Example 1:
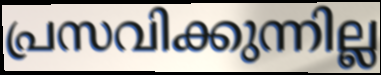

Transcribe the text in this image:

പ്രസവിക്കുന്നില്ല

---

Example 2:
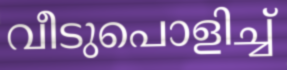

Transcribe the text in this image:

വീടുപൊളിച്ച്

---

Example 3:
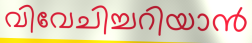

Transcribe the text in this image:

വിവേചിച്ചറിയാൻ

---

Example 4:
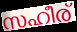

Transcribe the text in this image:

സഹീര്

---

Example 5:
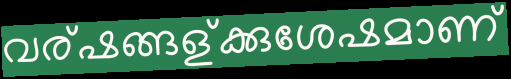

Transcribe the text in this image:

വര്ഷങ്ങള്ക്കുശേഷമാണ്